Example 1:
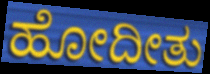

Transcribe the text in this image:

ಹೋದೀತು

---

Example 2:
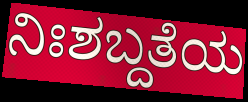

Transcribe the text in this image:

ನಿಃಶಬ್ದತೆಯ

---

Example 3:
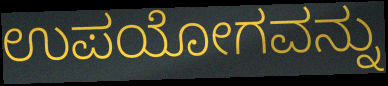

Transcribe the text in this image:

ಉಪಯೋಗವನ್ನು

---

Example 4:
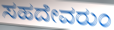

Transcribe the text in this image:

ಸಹದೇವರುಂ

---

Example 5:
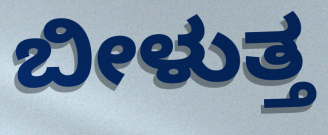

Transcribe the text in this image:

ಬೀಳುತ್ತ